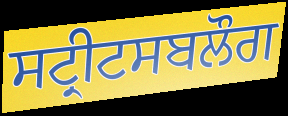
ਸਟ੍ਰੀਟਸਬਲੌਗ